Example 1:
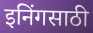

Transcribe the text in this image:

इनिंगसाठी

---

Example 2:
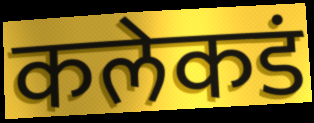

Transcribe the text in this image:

कलेकडं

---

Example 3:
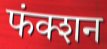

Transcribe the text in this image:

फंक्शन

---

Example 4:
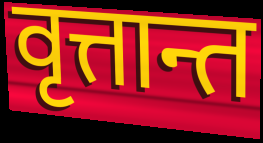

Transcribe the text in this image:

वृत्तान्त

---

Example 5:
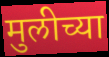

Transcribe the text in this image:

मुलीच्या